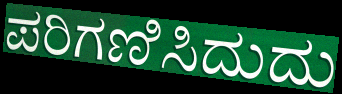
ಪರಿಗಣಿಸಿದುದು